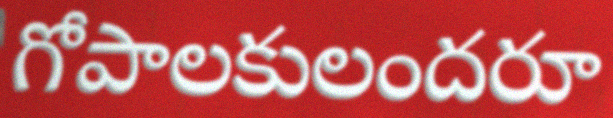
గోపాలకులందరూ